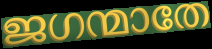
ജഗന്മാതേ